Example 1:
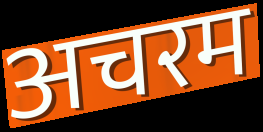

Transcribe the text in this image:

अचरम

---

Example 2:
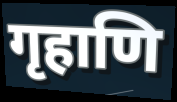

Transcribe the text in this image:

गृहाणि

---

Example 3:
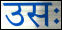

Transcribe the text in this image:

उसः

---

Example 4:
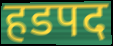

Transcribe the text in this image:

हडपद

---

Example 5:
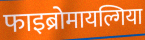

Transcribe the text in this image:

फाइब्रोमायल्गिया